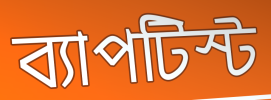
ব্যাপটিস্ট